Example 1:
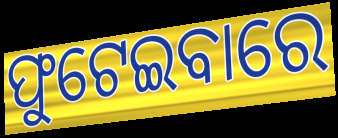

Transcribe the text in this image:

ଫୁଟେଇବାରେ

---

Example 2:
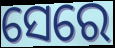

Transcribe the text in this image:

ସେରେ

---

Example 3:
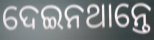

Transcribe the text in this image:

ଦେଇନଥାନ୍ତେ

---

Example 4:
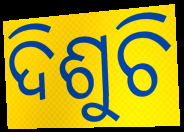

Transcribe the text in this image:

ଦିଶୁଚି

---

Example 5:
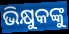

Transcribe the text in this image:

ଭିକ୍ଷୁକଙ୍କୁ